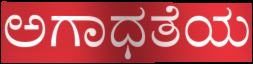
ಅಗಾಧತೆಯ